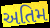
અતિમ